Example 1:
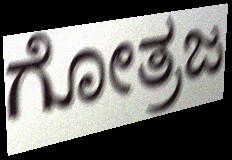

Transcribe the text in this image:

ಗೋತ್ರಜ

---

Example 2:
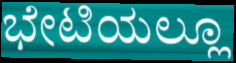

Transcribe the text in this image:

ಭೇಟಿಯಲ್ಲೂ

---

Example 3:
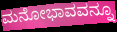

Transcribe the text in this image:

ಮನೋಭಾವವನ್ನೂ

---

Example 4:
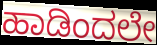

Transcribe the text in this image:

ಹಾಡಿಂದಲೇ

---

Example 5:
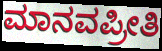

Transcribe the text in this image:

ಮಾನವಪ್ರೀತಿ